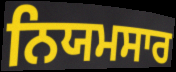
ਨਿਯਮਸਾਰ